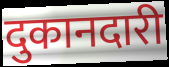
दुकानदारी